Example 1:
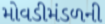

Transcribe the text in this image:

મોવડીમંડળની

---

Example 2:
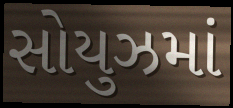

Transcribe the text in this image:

સોયુઝમાં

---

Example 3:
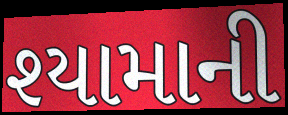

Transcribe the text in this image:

શ્યામાની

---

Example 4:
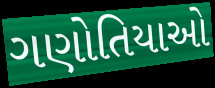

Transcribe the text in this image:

ગણોતિયાઓ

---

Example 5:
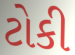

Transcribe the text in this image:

ટોકી